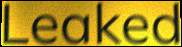
Leaked